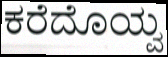
ಕರೆದೊಯ್ವ